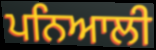
ਪਨਿਆਲੀ